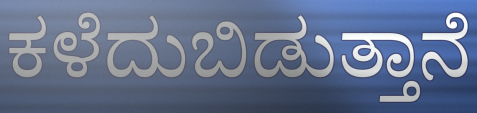
ಕಳೆದುಬಿಡುತ್ತಾನೆ